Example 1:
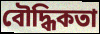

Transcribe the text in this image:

বৌদ্ধিকতা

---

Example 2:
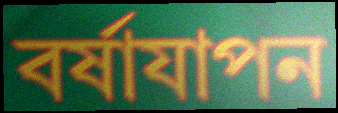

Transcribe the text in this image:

বর্ষাযাপন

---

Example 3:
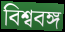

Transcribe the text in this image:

বিশ্ববঙ্গ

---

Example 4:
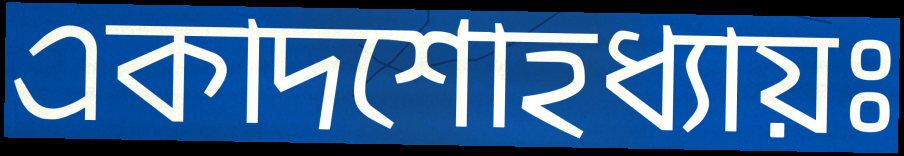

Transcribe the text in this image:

একাদশোহধ্যায়ঃ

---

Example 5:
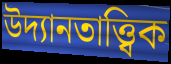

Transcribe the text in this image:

উদ্যানতাত্ত্বিক